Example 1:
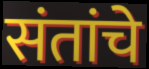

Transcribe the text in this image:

संतांचे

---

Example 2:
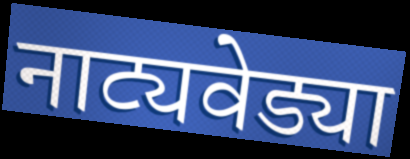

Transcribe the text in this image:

नाट्यवेड्या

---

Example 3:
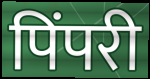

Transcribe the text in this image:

पिंपरी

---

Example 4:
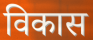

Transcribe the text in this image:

विकास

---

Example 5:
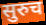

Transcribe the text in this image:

सुरुच